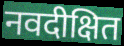
नवदीक्षित